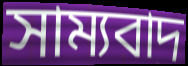
সাম্যবাদ